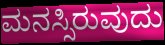
ಮನಸ್ಸಿರುವುದು